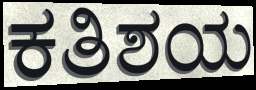
ಕತಿಶಯ